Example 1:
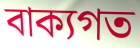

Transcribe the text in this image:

বাক্যগত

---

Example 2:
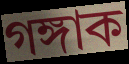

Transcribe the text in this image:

গঙ্গাক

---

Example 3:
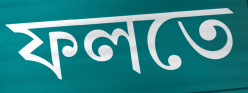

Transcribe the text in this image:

ফলতে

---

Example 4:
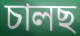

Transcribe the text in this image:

চালছ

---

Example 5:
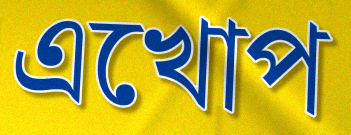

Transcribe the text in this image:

এখোপ